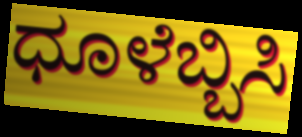
ಧೂಳೆಬ್ಬಿಸಿ